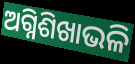
ଅଗ୍ନିଶିଖାଭଳି